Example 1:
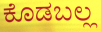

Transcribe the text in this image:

ಕೊಡಬಲ್ಲ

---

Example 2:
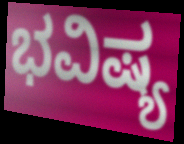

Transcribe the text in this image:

ಭವಿಷ್ಯ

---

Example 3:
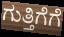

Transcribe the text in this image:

ಗುತ್ತಿಗೆಗೆ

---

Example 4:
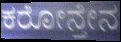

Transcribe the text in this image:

ಕರೋನ್ತೇನ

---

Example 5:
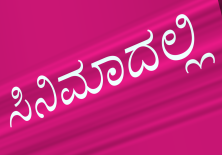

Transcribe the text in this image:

ಸಿನಿಮಾದಲ್ಲಿ